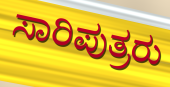
ಸಾರಿಪುತ್ರರು